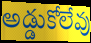
అడ్డుకోలేవు